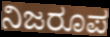
ನಿಜರೂಪ